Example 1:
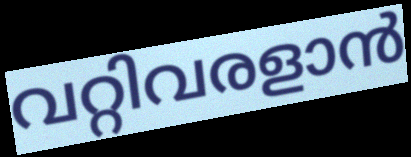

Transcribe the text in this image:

വറ്റിവരളാൻ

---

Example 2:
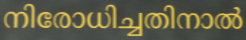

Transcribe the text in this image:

നിരോധിച്ചതിനാൽ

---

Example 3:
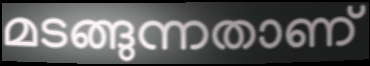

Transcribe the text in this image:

മടങ്ങുന്നതാണ്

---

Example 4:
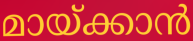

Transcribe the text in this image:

മായ്ക്കാൻ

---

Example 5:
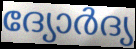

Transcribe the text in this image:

ദ്യോർദ്യ